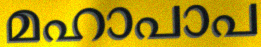
മഹാപാപ